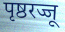
पृष्ठरज्जू